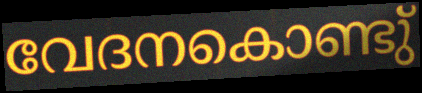
വേദനകൊണ്ടു്